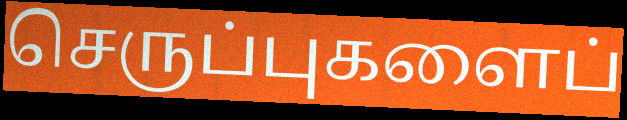
செருப்புகளைப்